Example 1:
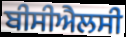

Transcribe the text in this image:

ਬੀਸੀਐਲਸੀ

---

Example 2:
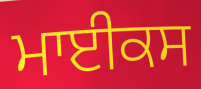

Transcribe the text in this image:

ਮਾਈਕਸ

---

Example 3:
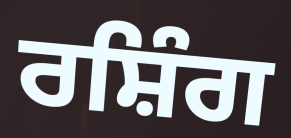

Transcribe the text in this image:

ਰਸ਼ਿੰਗ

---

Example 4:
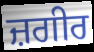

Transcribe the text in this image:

ਜ਼ਗੀਰ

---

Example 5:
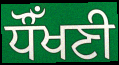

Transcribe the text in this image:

ਧੌਁਖਣੀ